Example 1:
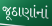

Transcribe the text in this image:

જૂઠાણાંનાં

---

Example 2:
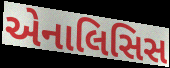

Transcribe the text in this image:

એનાલિસિસ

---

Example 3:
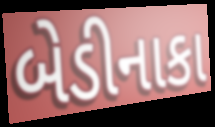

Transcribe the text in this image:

બેડીનાકા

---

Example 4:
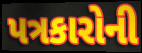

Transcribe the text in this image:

પત્રકારોની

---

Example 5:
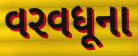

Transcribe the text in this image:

વરવધૂના